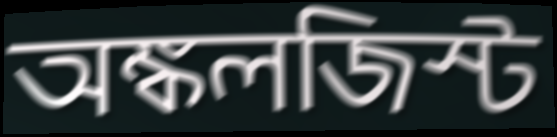
অঙ্কলজিস্ট